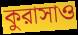
কুরাসাও